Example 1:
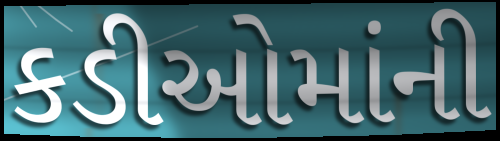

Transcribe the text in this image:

કડીઓમાંની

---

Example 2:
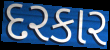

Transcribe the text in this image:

દરકાર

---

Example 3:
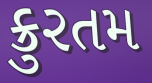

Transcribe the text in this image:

ક્રુરતમ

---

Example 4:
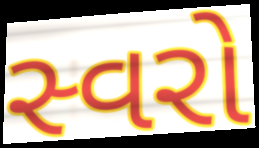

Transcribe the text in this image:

સ્વરો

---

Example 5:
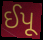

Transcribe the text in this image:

ઈપૂ